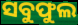
ସବୁଫୁଲ